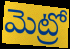
మెట్రో